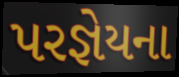
પરજ્ઞેયના